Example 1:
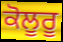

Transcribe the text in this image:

ਕੋਲੂਰੂ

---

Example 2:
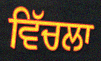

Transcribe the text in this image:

ਵਿੱਚਲਾ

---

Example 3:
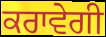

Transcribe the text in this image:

ਕਰਾਵੇਗੀ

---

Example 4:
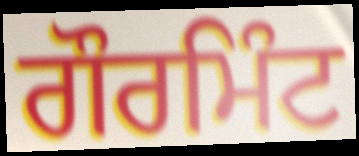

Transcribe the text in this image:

ਗੌਰਮਿੰਟ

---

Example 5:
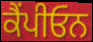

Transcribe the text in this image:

ਕੈਂਪੀਓਨ